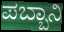
ಪಬ್ಬಾನಿ